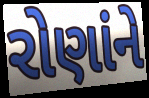
રોણાંને